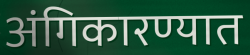
अंगिकारण्यात